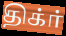
திக்ர்